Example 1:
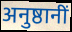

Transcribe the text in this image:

अनुष्ठानीं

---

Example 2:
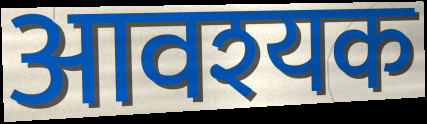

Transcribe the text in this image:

आवश्‍यक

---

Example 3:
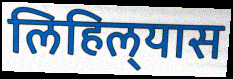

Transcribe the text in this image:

लिहिल्यास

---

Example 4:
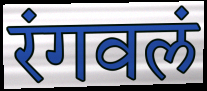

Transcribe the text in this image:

रंगवलं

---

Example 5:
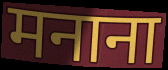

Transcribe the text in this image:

मनाना